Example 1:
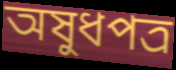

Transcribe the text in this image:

অষুধপত্র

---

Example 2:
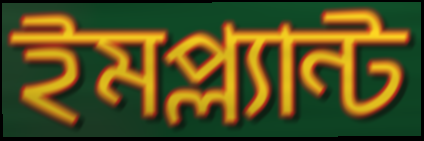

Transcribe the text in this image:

ইমপ্ল্যান্ট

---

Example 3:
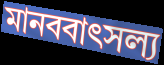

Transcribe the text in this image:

মানববাৎসল্য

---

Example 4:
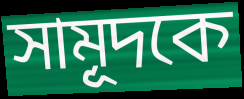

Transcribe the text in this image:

সামূদকে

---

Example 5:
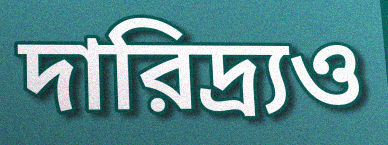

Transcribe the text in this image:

দারিদ্র্যও